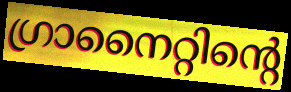
ഗ്രാനൈറ്റിന്റെ